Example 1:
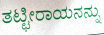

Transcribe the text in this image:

ತಟ್ಟೀರಾಯನನ್ನು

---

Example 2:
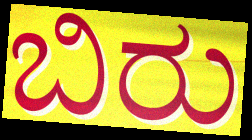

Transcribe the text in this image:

ಬಿರು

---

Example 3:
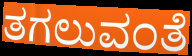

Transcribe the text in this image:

ತಗಲುವಂತೆ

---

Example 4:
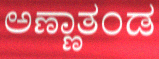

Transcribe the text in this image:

ಅಣ್ಣಾತಂಡ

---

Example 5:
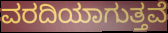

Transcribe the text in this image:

ವರದಿಯಾಗುತ್ತವೆ